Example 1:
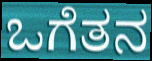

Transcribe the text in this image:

ಒಗೆತನ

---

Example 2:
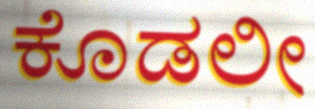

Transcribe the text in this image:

ಕೊಡಲೀ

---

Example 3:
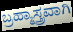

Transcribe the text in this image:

ಬ್ರಹ್ಮಾಸ್ತ್ರವಾಗಿ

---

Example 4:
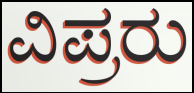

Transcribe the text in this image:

ವಿಪ್ರರು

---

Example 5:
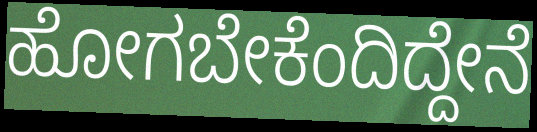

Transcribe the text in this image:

ಹೋಗಬೇಕೆಂದಿದ್ದೇನೆ